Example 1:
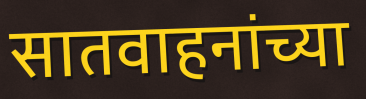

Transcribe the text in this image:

सातवाहनांच्या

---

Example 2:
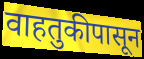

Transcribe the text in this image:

वाहतुकीपासून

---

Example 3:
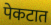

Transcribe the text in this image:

पेकटात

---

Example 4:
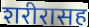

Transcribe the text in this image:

शरीरासह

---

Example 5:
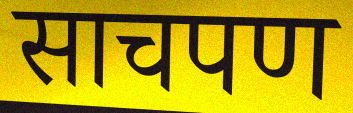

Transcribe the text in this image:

साचपण